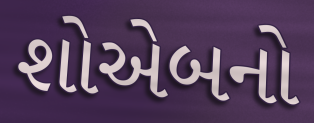
શોએબનો